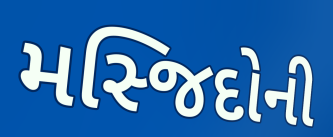
મસ્જિદોની